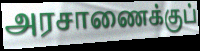
அரசாணைக்குப்